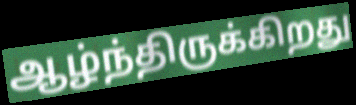
ஆழ்ந்திருக்கிறது